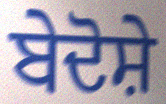
ਬੇਦੋਸ਼ੇ